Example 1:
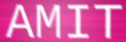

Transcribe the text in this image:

AMIT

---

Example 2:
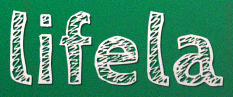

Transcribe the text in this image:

lifela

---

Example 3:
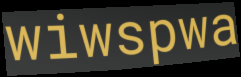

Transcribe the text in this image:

wiwspwa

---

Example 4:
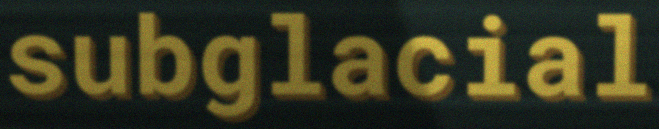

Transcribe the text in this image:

subglacial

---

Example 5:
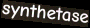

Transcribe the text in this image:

synthetase